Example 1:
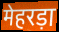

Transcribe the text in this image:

मेहरड़ा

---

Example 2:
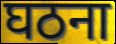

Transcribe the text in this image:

घठना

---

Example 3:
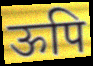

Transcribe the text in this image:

ऊपि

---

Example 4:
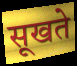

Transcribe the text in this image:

सूखते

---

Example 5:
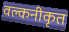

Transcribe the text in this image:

वल्कनीकृत